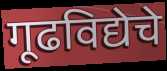
गूढविद्येचे